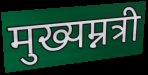
मुख्यम्नत्री